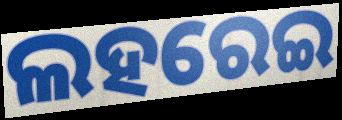
ଲହରେଇ